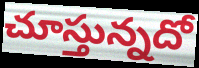
చూస్తున్నదో